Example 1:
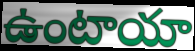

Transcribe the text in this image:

ఉంటాయా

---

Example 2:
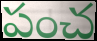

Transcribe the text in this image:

పంచ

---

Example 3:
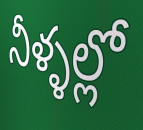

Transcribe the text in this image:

నీళ్ళల్లో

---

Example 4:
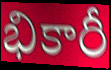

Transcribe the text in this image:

భికారీ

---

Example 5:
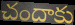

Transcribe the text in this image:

చందాకు